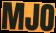
MJO